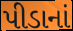
પીડાનાં